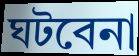
ঘটবেনা